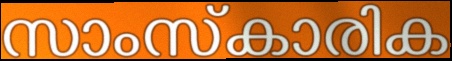
സാംസ്‌കാരിക